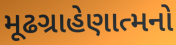
મૂઢગ્રાહેણાત્મનો